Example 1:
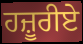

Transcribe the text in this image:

ਹਜ਼ੂਰੀਏ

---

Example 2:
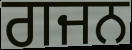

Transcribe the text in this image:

ਗਜਨ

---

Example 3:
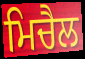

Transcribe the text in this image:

ਮਿਚੈਲ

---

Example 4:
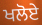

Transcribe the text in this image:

ਖਲੋਏ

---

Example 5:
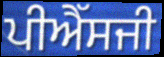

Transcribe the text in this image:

ਪੀਐੱਸਜੀ